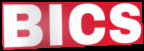
BICS